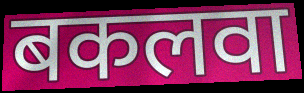
बकलवा